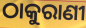
ଠାକୁରାଣୀ